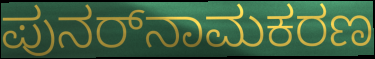
ಪುನರ್‌ನಾಮಕರಣ